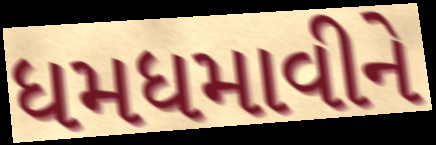
ધમધમાવીને